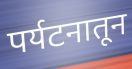
पर्यटनातून